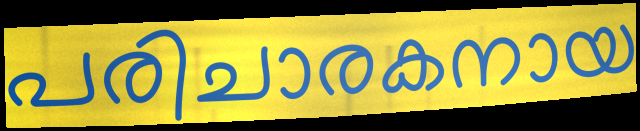
പരിചാരകനായ